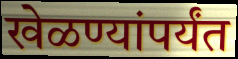
खेळण्यांपर्यंत